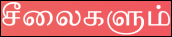
சீலைகளும்